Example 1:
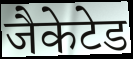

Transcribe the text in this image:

जैकेटेड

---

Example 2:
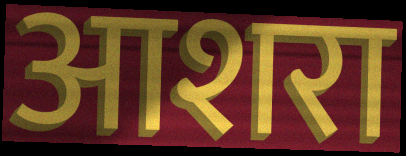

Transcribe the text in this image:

आशरा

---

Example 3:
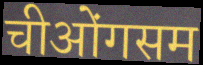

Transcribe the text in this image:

चीओंगसम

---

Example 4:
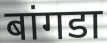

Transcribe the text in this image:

बांगडा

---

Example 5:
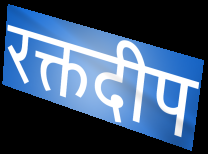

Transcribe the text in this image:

रक्तदीप